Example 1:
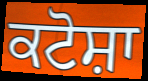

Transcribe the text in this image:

ਕਟੋਸ਼ਾ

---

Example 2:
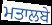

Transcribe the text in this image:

ਮਤਾਲਬੇ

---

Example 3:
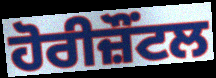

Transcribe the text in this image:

ਹੋਰੀਜ਼ੌਂਟਲ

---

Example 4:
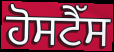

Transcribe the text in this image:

ਹੋਸਟੈੱਸ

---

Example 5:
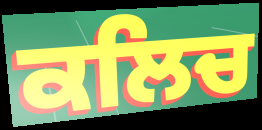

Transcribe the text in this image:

ਕਲਿਚ